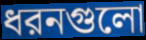
ধরনগুলো